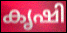
കൃഷി